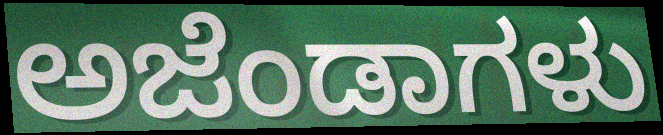
ಅಜೆಂಡಾಗಳು